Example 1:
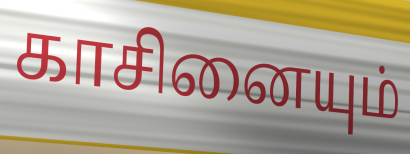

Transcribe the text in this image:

காசினையும்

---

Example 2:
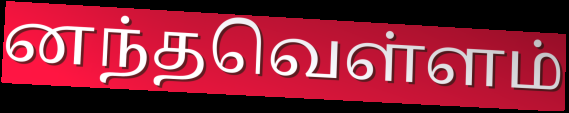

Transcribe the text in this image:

னந்தவெள்ளம்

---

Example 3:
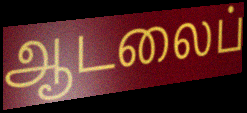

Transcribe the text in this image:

ஆடலைப்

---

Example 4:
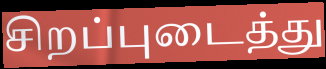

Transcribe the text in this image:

சிறப்புடைத்து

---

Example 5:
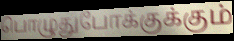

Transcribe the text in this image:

பொழுதுபோக்குக்கும்